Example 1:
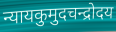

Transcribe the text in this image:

न्यायकुमुदचन्द्रोदय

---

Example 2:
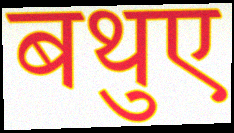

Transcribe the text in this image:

बथुए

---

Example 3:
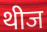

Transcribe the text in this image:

थीज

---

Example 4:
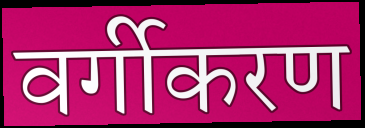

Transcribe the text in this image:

वर्गीकरण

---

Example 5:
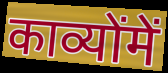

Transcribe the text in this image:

काव्योंमें